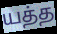
யத்த